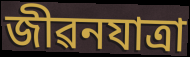
জীৱনযাত্ৰা